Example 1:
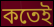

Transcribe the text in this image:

কতেই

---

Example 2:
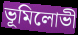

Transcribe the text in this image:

ভূমিলোভী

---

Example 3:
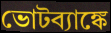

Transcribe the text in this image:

ভোটব্যাঙ্কে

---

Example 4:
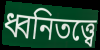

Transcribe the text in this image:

ধ্বনিতত্ত্বে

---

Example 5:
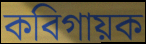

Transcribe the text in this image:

কবিগায়ক